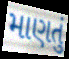
માણતું